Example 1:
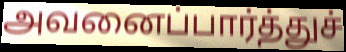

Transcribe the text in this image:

அவனைப்பார்த்துச்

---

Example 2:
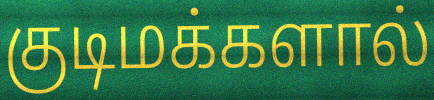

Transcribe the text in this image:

குடிமக்களால்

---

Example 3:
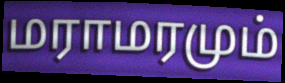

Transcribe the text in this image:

மராமரமும்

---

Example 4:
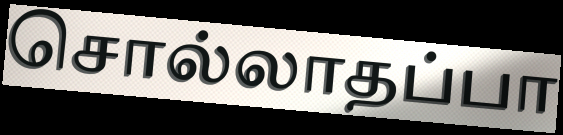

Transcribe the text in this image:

சொல்லாதப்பா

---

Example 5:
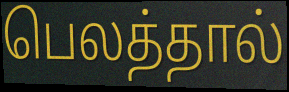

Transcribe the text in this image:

பெலத்தால்